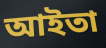
আইতা